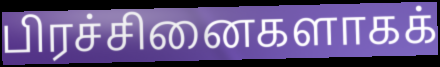
பிரச்சினைகளாகக்